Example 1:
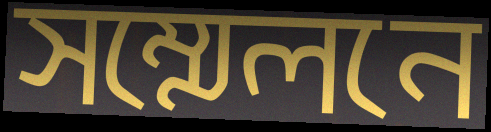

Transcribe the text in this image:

সম্মেলনে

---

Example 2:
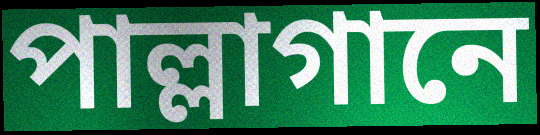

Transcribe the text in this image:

পাল্লাগানে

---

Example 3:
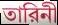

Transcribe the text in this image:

তারিনী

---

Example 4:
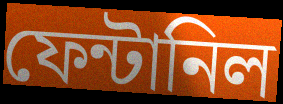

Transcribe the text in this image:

ফেন্টানিল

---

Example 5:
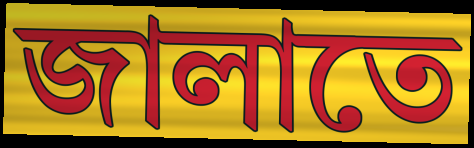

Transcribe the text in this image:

জালাতে